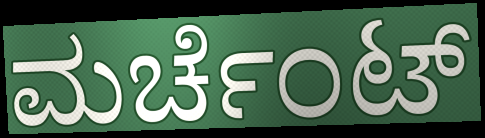
ಮರ್ಚೆಂಟ್